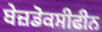
ਬੇਜ਼ਡੋਕਸੀਫੀਨ